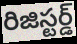
రిజిస్టర్డ్